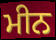
ਮੀਨ